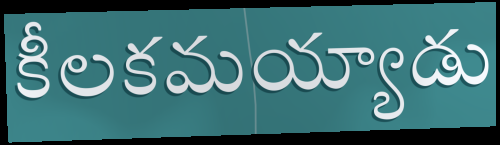
కీలకమయ్యాడు